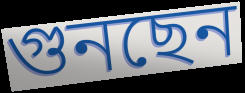
গুনছেন